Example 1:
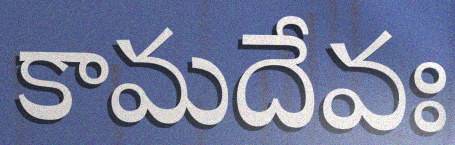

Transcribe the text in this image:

కామదేవః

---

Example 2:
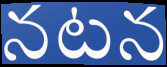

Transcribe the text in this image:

నటన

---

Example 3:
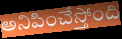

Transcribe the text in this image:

అనిపించేస్తోంది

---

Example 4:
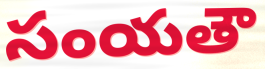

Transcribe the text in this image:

సంయతౌ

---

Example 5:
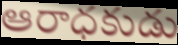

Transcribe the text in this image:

ఆరాధకుడు